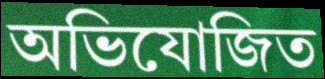
অভিযোজিত